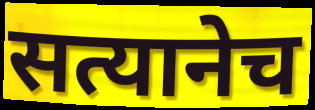
सत्यानेच